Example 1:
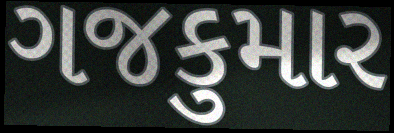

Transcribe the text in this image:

ગજકુમાર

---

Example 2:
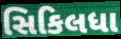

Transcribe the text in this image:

સિકિલધા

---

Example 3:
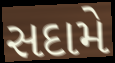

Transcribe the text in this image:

સદામે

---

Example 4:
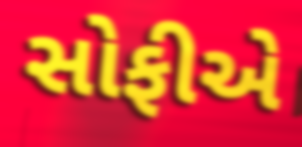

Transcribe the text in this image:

સોફીએ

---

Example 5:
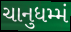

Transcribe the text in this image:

ચાનુધમ્મં